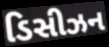
ડિસીઝન